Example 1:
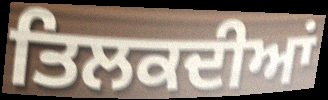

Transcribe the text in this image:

ਤਿਲਕਦੀਆਂ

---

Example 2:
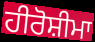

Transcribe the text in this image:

ਹੀਰੋਸ਼ੀਮਾ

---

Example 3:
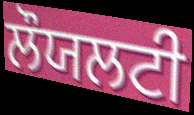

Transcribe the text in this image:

ਲੌਯਲਟੀ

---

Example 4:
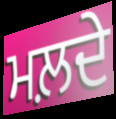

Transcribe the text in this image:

ਮਲ਼ਦੇ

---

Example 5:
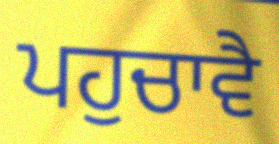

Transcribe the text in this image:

ਪਹੁਚਾਵੈ